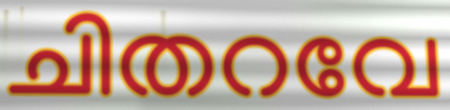
ചിതറവേ